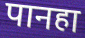
पानहा